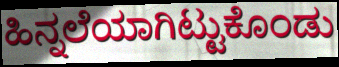
ಹಿನ್ನಲೆಯಾಗಿಟ್ಟುಕೊಂಡು